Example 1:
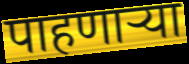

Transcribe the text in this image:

पाहणार्‍या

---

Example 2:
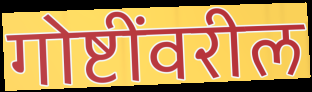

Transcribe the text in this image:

गोष्टींवरील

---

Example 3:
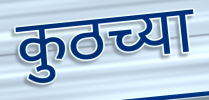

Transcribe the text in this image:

कुठच्या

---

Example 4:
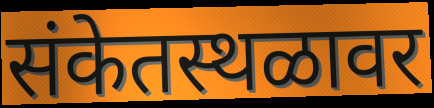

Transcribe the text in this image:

संकेतस्थळावर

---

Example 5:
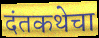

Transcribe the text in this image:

दंतकथेचा